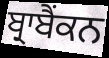
ਬ੍ਰਾਬੈਂਕਨ